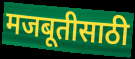
मजबूतीसाठी